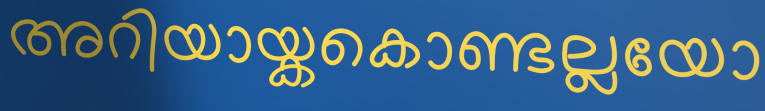
അറിയായ്കകൊണ്ടല്ലയോ